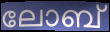
ലോബ്